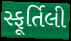
સ્ફૂર્તિલી